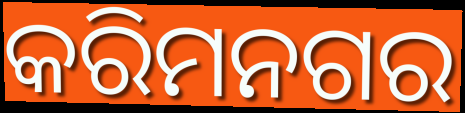
କରିମନଗର